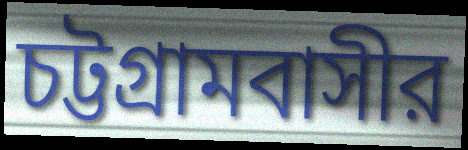
চট্টগ্রামবাসীর